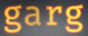
garg